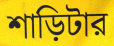
শাড়িটার